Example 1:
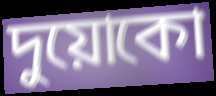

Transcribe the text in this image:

দুয়োকো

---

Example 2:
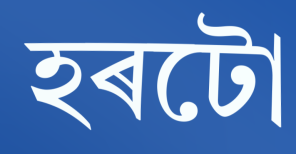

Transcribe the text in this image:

হৰটো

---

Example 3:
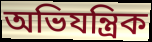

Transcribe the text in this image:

অভিযন্ত্ৰিক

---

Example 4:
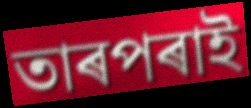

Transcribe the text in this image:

তাৰপৰাই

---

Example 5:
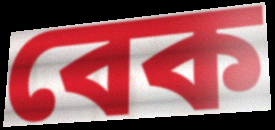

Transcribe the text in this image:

বেক